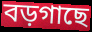
বড়গাছে